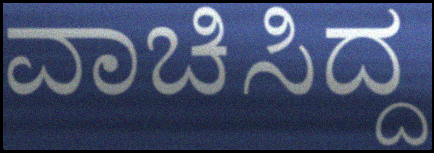
ವಾಚಿಸಿದ್ದ